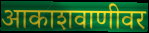
आकाशवाणीवर